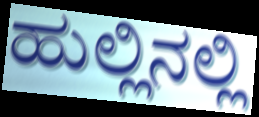
ಹುಲ್ಲಿನಲ್ಲಿ